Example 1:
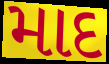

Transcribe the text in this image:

માદ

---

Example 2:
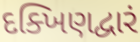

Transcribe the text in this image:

દક્ખિણદ્વારં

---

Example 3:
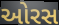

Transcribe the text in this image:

ઓરસ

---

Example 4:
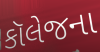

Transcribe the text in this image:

કૉલેજના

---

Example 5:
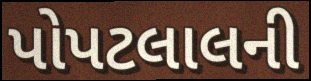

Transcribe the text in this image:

પોપટલાલની